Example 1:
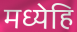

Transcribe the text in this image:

मध्येहि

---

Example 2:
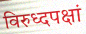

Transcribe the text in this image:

विरुध्दपक्षां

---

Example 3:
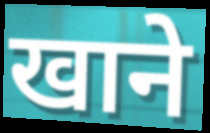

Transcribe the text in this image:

खाने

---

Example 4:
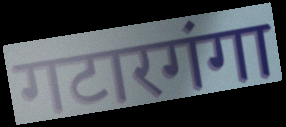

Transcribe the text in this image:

गटारगंगा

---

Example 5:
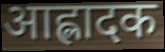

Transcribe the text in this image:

आह्लादक